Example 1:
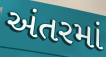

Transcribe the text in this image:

અંતરમાં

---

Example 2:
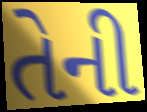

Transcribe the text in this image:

તેની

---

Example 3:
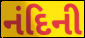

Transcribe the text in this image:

નંદિની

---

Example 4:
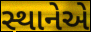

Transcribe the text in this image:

સ્થાનેએ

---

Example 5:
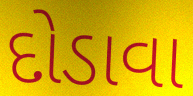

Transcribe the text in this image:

દોડાવા